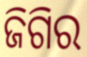
ଜିଗିର